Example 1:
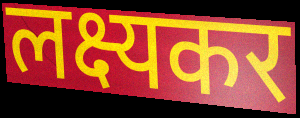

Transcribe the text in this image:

लक्ष्यकर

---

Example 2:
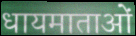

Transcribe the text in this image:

धायमाताओं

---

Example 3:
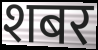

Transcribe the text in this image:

शबर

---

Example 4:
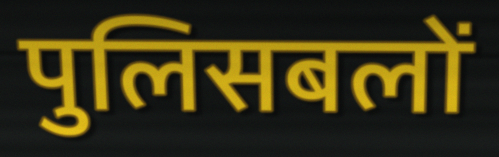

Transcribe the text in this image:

पुलिसबलों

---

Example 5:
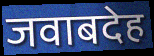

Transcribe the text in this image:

जवाबदेह